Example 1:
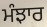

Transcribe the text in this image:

ਮੰਝਾਰ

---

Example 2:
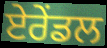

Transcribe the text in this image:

ਏਰੇਂਡਲ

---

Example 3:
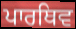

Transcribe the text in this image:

ਪਾਰਥਿਵ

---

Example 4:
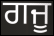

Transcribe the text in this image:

ਗਜੂ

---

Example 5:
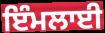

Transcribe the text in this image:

ਇੰਮਲਾਈ